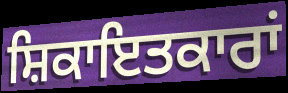
ਸ਼ਿਕਾਇਤਕਾਰਾਂ